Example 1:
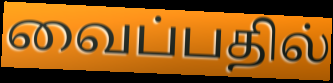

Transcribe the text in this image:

வைப்பதில்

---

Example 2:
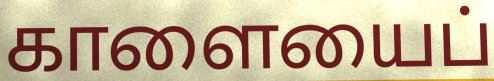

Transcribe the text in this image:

காளையைப்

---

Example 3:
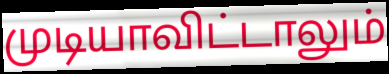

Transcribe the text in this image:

முடியாவிட்டாலும்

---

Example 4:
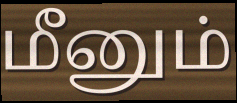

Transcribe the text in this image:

மீனும்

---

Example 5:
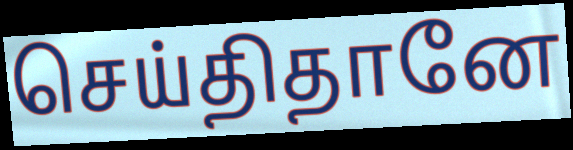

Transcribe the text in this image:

செய்திதானே